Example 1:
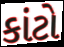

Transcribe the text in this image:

કાંટો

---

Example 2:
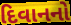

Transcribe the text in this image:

દિવાનનો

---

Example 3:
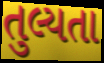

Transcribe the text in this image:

તુલ્યતા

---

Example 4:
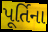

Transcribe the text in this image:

પૂર્તિના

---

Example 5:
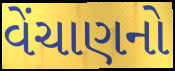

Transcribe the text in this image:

વેંચાણનો